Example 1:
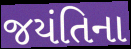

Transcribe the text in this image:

જયંતિના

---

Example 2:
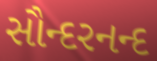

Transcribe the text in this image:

સૌન્દરનન્દ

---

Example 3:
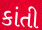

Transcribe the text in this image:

કાંતી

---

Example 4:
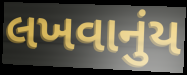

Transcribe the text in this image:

લખવાનુંય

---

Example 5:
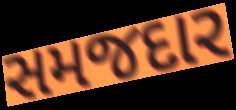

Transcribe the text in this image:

સમજદાર